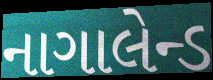
નાગાલેન્ડ